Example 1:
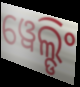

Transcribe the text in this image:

ୱେଲ୍ଡିଂ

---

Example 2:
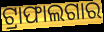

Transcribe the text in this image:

ଟ୍ରାଫାଲଗାର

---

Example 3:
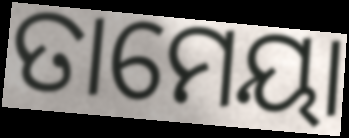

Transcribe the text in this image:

ତାମେୟା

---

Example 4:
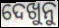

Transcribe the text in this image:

ଦେଖୁନୁ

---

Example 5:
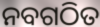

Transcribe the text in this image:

ନବଗଠିତ